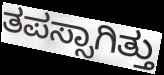
ತಪಸ್ಸಾಗಿತ್ತು